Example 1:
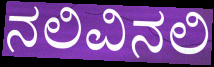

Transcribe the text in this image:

ನಲಿವಿನಲಿ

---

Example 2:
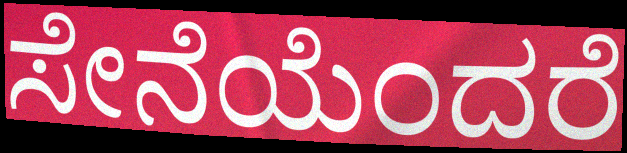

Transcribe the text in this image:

ಸೇನೆಯೆಂದರೆ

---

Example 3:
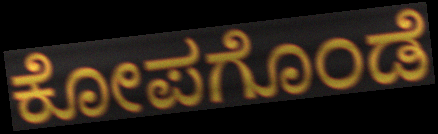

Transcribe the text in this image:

ಕೋಪಗೊಂಡೆ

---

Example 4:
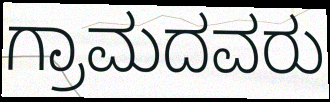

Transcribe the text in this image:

ಗ್ರಾಮದವರು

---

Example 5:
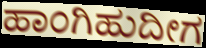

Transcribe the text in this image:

ಹಾಂಗಿಹುದೀಗ